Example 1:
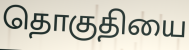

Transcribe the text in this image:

தொகுதியை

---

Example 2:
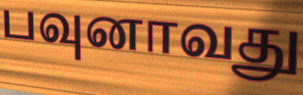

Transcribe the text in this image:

பவுனாவது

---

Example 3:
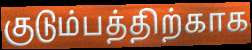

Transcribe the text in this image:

குடும்பத்திற்காக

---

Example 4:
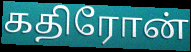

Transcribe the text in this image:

கதிரோன்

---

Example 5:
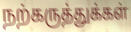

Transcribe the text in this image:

நற்கருத்துக்கள்